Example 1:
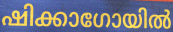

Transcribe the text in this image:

ഷിക്കാഗോയിൽ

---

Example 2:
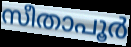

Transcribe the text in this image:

സീതാപൂർ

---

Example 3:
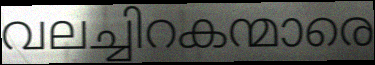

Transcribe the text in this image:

വലച്ചിറകന്മാരെ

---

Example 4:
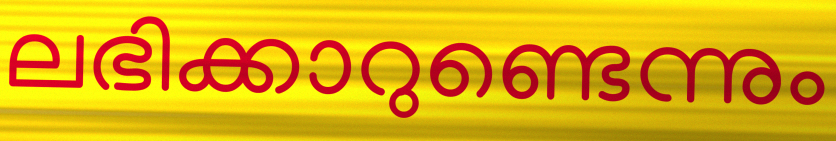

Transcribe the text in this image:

ലഭിക്കാറുണ്ടെന്നും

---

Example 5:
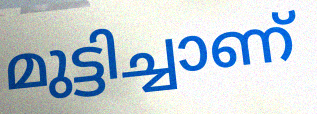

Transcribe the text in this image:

മുട്ടിച്ചാണ്